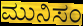
ಮುನಿಸಂ